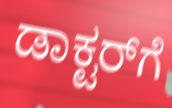
ಡಾಕ್ಟರ್‌ಗೆ